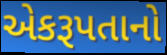
એકરૂપતાનો